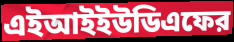
এইআইইউডিএফের